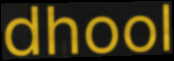
dhool